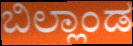
ಬಿಲ್ಲಾಂಡ